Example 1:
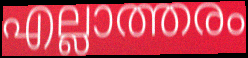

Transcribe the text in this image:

എല്ലാത്തരം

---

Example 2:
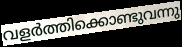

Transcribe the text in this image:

വളർത്തിക്കൊണ്ടുവന്നു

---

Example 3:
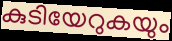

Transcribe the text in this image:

കുടിയേറുകയും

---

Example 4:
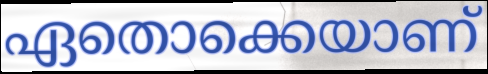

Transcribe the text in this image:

ഏതൊക്കെയാണ്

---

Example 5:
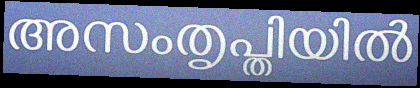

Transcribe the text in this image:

അസംതൃപ്തിയിൽ